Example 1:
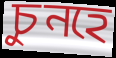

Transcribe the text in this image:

চুনহে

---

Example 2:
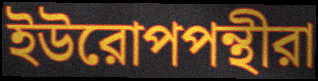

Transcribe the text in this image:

ইউরোপপন্থীরা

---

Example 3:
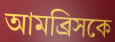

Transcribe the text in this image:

আমব্রিসকে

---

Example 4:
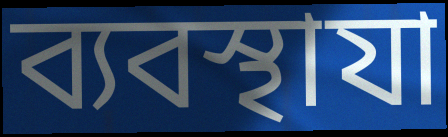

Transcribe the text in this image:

ব্যবস্থাযা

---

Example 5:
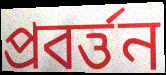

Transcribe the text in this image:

প্রবর্ত্তন